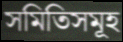
সমিতিসমূহ